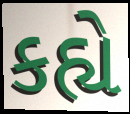
કહ્યે